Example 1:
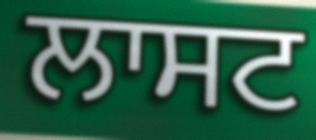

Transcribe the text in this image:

ਲਾਸਟ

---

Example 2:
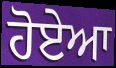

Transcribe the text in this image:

ਹੋਏਆ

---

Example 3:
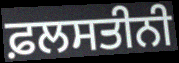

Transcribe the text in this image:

ਫ਼ਲਸਤੀਨੀ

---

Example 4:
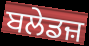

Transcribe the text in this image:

ਬਲੇਡਜ਼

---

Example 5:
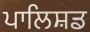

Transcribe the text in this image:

ਪਾਲਿਸ਼ਡ